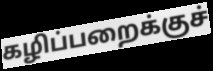
கழிப்பறைக்குச்